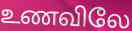
உணவிலே